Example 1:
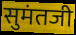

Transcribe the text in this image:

सुमंतजी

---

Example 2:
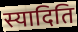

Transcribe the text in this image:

स्यादिति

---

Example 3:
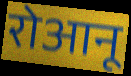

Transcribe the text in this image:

रोआनू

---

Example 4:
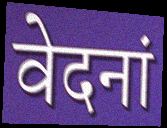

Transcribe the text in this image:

वेदनां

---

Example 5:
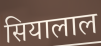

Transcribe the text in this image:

सियालाल